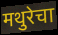
मथुरेचा